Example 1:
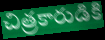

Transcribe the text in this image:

చిత్రకారుడికి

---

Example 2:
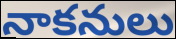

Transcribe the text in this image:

నాకనులు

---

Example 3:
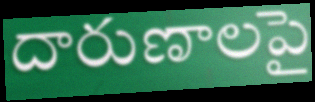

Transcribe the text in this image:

దారుణాలపై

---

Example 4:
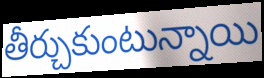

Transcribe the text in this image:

తీర్చుకుంటున్నాయి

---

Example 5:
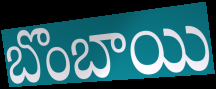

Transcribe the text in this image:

బొంబాయి